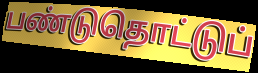
பண்டுதொட்டுப்